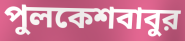
পুলকেশবাবুর